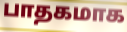
பாதகமாக